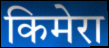
किमेरा